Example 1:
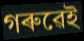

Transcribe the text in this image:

গৰুৱেই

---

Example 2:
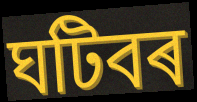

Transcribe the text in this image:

ঘটিবৰ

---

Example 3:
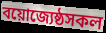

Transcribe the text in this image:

বয়োজ্যেষ্ঠসকল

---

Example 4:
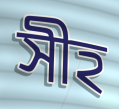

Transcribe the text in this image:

সীহ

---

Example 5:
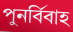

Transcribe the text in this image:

পুনৰ্বিবাহ